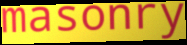
masonry